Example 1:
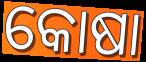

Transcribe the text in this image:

କୋଷା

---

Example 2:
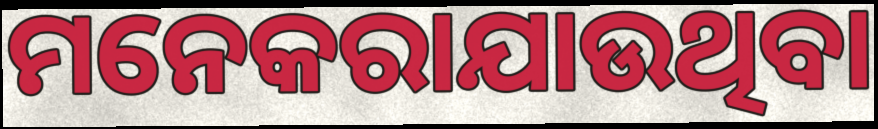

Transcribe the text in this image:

ମନେକରାଯାଉଥିବା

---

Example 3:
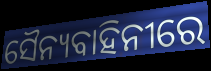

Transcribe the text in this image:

ସୈନ୍ୟବାହିନୀରେ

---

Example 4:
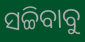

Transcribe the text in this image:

ସଚ୍ଚିବାବୁ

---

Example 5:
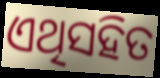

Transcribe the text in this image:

ଏଥିସହିତ